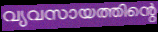
വ്യവസായത്തിന്റെ